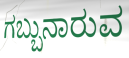
ಗಬ್ಬುನಾರುವ